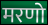
मरणो